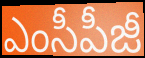
ఎంసీపీజీ